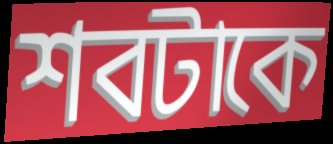
শবটাকে